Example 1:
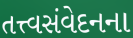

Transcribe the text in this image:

તત્ત્વસંવેદનના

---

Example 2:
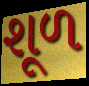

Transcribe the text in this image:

શૂળ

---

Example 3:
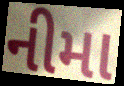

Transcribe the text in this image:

નીમા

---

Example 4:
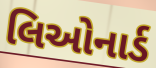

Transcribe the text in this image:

લિઓનાર્ડ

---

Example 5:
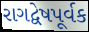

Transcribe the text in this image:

રાગદ્વેષપૂર્વક